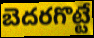
బెదరగొట్టే